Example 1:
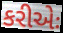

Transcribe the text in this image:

કરીએઃ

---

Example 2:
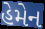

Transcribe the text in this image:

હેમેન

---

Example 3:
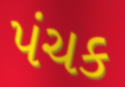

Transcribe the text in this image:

પંચક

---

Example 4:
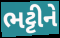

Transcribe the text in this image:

ભટ્ટીને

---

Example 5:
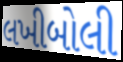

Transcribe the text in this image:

લખીબોલી